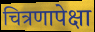
चित्रणापेक्षा